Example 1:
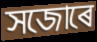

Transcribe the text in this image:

সজোৰে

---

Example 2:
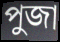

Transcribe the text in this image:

পুজা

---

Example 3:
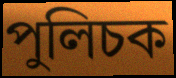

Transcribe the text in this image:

পুলিচক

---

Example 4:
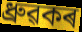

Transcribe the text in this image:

ধ্ৰুৱকৰ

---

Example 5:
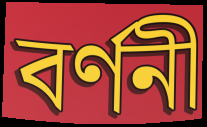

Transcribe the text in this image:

বৰ্ণনী